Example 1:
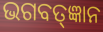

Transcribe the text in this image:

ଭଗବତ୍‌ଜ୍ଞାନ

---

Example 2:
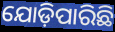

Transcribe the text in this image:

ଯୋଡ଼ିପାରିଛି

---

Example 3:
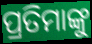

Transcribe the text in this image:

ପ୍ରତିମାଙ୍କୁ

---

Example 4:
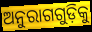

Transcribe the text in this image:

ଅନୁରାଗଗୁଡ଼ିକୁ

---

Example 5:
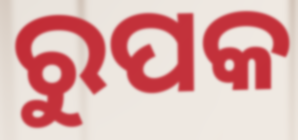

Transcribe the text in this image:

ରୁପକ